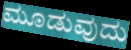
ಮೂಡುವುದು